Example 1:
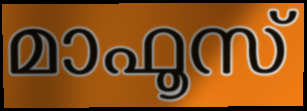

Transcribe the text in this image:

മാഫൂസ്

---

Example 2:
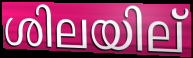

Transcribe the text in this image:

ശിലയില്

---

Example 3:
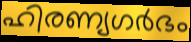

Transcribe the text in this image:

ഹിരണ്യഗർഭം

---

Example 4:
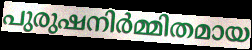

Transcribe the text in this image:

പുരുഷനിർമ്മിതമായ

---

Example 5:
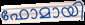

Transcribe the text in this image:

ഫോമായി